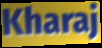
Kharaj